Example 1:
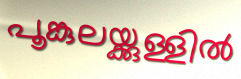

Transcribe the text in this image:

പൂങ്കുലയ്ക്കുള്ളിൽ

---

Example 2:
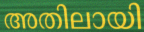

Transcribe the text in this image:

അതിലായി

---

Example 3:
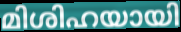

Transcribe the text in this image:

മിശിഹയായി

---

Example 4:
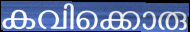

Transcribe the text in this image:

കവിക്കൊരു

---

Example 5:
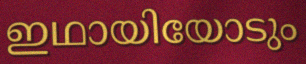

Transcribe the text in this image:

ഇഥായിയോടും